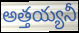
అత్తయ్యనీ